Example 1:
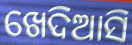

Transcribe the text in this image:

ଖେଦିଆସି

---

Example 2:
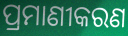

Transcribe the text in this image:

ପ୍ରମାଣୀକରଣ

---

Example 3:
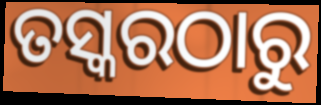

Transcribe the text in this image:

ତସ୍କରଠାରୁ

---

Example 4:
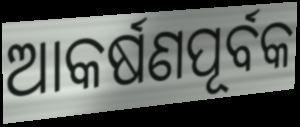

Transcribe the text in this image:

ଆକର୍ଷଣପୂର୍ବକ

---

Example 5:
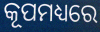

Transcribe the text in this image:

କୂପମଧ୍ୟରେ